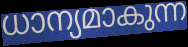
ധാന്യമാകുന്ന